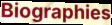
Biographies